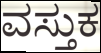
ವಸ್ತುಕ